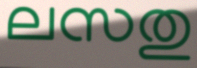
ലസതു